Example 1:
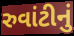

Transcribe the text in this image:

રુવાંટીનું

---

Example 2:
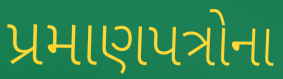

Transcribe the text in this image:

પ્રમાણપત્રોના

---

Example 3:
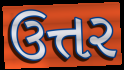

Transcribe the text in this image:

ઉત્તર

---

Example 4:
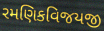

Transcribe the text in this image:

રમણિકવિજયજી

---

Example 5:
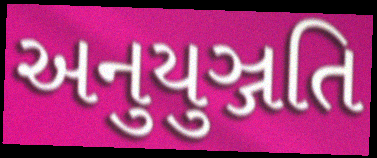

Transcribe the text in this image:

અનુયુઞ્જતિ